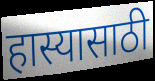
हास्यासाठी